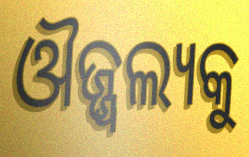
ଔଜ୍ଜ୍ଵଲ୍ୟକୁ